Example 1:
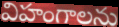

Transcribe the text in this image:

విహంగాలను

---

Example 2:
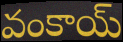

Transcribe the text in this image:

వంకాయ్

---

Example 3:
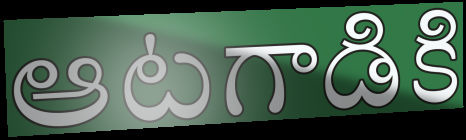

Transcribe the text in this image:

ఆటగాడికి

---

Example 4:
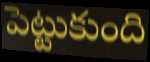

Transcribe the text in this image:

పెట్టుకుంది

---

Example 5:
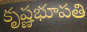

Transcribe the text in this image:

కృష్ణభూపతి